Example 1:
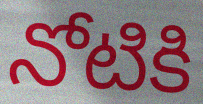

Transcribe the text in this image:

నోటికి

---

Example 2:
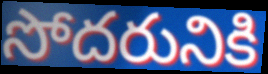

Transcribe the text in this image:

సోదరునికి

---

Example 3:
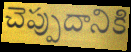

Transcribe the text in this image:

చెప్పుదానికి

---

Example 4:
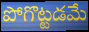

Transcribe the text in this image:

పోగొట్టడమే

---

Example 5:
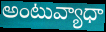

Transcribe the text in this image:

అంటువ్యాధా